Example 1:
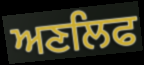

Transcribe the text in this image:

ਅਣਲਿਫ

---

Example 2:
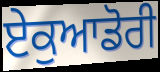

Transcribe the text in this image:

ਏਕੁਆਡੋਰੀ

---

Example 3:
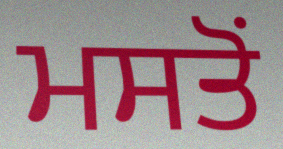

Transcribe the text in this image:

ਮਸਤੋਂ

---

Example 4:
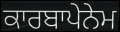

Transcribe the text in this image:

ਕਾਰਬਾਪੇਨੇਮ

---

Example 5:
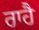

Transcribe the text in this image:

ਰਾਹੈ